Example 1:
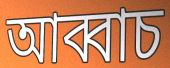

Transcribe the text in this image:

আব্বাচ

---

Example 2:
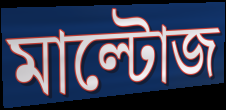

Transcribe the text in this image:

মাল্টোজ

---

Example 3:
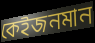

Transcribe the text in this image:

কেইজনমান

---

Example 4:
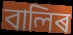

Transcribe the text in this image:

বালিৰ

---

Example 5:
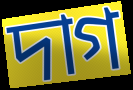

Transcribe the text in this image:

দাগ